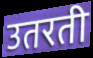
उतरती